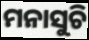
ମନାସୁଚି